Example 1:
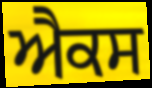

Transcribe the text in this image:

ਐਕਸ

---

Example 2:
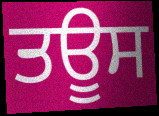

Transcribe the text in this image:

ਤਊਸ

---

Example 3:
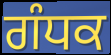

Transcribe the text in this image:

ਗੰਧਕ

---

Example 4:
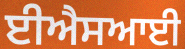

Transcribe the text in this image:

ਈਐਸਆਈ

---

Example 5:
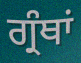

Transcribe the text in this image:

ਗ੍ਰੰਥਾਂ